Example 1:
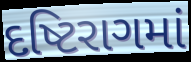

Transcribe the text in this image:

દષ્ટિરાગમાં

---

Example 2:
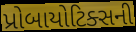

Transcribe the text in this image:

પ્રોબાયોટિક્સની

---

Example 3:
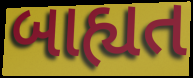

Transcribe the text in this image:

બાહ્યત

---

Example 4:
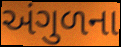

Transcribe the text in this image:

અંગુળના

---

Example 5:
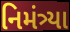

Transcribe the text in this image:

નિમંત્ર્યા